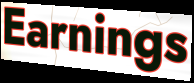
Earnings